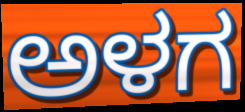
ಅಳಗ